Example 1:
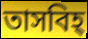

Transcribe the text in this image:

তাসবিহ্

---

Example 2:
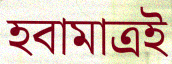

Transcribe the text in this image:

হবামাত্রই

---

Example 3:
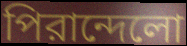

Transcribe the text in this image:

পিরান্দেলো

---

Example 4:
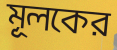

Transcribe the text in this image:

মূলকের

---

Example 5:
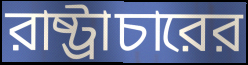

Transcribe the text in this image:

রাষ্ট্রাচারের